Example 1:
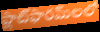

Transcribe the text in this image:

ప్లాట్‌ఫారమ్‌లలో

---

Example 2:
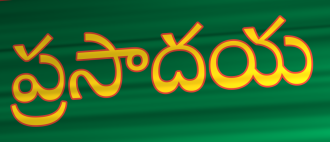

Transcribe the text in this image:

ప్రసాదయ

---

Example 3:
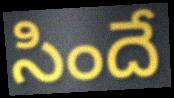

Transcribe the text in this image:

సిందే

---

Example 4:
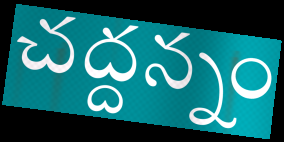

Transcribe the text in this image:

చద్దన్నం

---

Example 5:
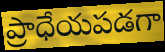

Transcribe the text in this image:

ప్రాధేయపడగా